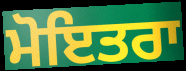
ਮੋਇਤਰਾ